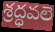
శ్రద్ధవలె